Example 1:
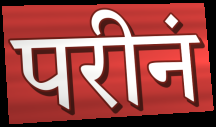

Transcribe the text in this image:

परीनं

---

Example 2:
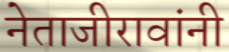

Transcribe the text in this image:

नेताजीरावांनी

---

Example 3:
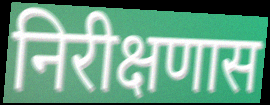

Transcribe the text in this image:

निरीक्षणास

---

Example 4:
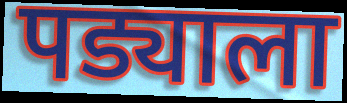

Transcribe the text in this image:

पड्याला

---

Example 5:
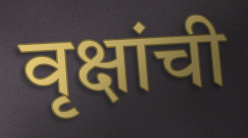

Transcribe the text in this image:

वृक्षांची